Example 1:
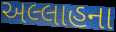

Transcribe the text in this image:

અલ્લાહના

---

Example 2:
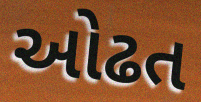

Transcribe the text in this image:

ઓઢત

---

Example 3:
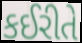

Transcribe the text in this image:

કઈરીતે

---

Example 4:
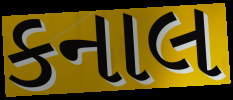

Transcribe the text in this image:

કનાલ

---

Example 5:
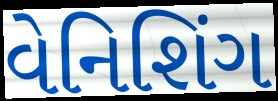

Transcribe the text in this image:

વેનિશિંગ